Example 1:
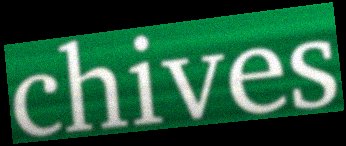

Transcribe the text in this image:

chives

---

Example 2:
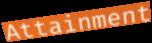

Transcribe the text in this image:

Attainment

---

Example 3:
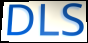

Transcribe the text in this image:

DLS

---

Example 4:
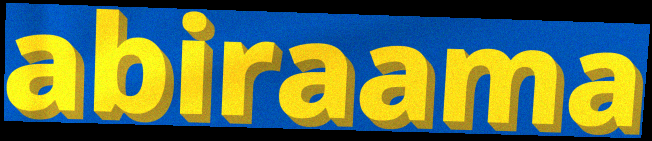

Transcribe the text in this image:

abiraama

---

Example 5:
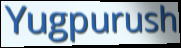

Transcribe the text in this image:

Yugpurush